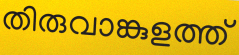
തിരുവാങ്കുളത്ത്